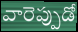
వారెప్పుడో